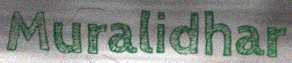
Muralidhar